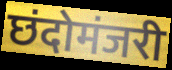
छंदोमंजरी